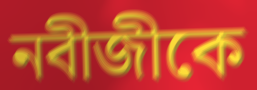
নবীজীকে